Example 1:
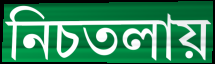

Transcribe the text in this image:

নিচতলায়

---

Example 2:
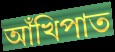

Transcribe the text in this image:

আঁখিপাত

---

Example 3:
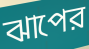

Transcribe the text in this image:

ঝাপের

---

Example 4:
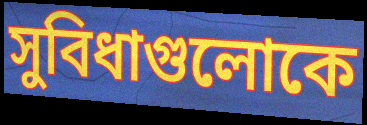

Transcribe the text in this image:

সুবিধাগুলোকে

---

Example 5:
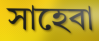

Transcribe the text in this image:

সাহেবা